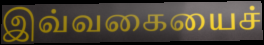
இவ்வகையைச்